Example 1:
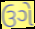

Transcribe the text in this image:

ઉગે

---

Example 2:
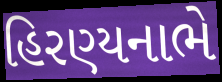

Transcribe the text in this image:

હિરણ્યનાભે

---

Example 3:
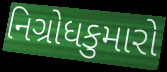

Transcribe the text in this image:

નિગ્રોધકુમારો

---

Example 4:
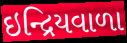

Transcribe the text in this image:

ઇન્દ્રિયવાળા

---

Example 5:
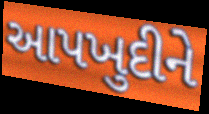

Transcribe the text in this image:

આપખુદીને